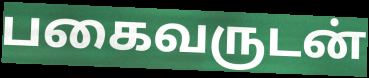
பகைவருடன்